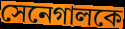
সেনেগালকে